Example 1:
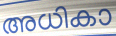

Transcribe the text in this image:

അധികാ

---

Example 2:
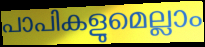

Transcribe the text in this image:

പാപികളുമെല്ലാം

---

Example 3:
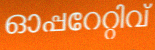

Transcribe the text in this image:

ഓപ്പറേറ്റിവ്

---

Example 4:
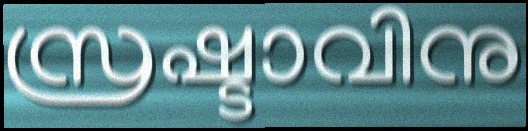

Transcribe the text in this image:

സ്രഷ്ടാവിനു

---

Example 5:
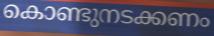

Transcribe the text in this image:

കൊണ്ടുനടക്കണം